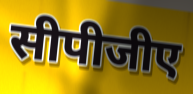
सीपीजीए